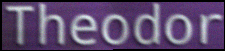
Theodor